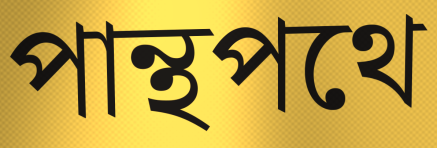
পান্থপথে